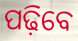
ପଢ଼ିବେ